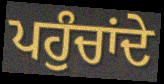
ਪਹੁੰਚਾਂਦੇ